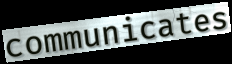
communicates